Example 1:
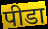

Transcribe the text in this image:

पीडा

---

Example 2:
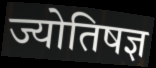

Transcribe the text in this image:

ज्योतिषज्ञ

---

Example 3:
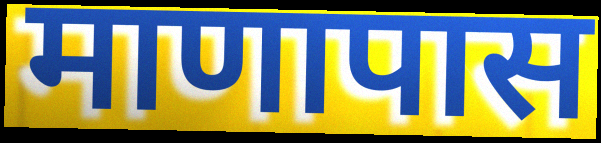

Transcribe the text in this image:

माणापास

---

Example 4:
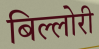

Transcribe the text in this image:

बिल्लोरी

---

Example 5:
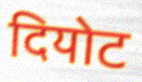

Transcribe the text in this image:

दियोट